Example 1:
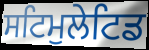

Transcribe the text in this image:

ਸਟਿਮੁਲੇਟਿਡ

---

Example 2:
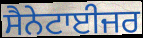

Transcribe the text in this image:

ਸੈਨੇਟਾਈਜਰ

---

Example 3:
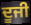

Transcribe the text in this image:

ਦੂਜੀ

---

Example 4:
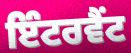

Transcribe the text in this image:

ਇੰਟਰਵੈਂਟ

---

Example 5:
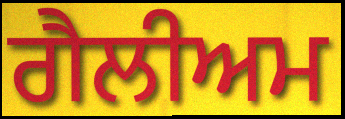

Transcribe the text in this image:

ਗੈਲੀਅਮ